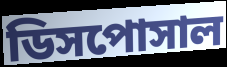
ডিসপোসাল